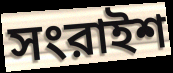
সংরাইশ